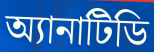
অ্যানাটিডি